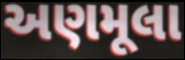
અણમૂલા